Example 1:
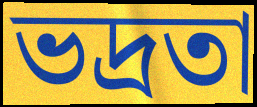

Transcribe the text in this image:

ভদ্রতা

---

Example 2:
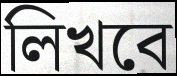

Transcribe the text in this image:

লিখবে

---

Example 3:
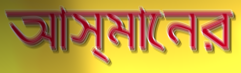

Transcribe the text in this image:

আস্‌মানের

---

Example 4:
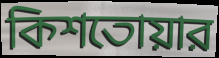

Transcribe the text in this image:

কিশতোয়ার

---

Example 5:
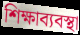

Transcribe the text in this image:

শিক্ষাব্যবস্থা